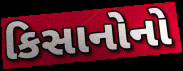
કિસાનોનો